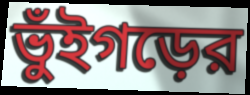
ভুঁইগড়ের